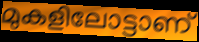
മുകളിലോട്ടാണ്